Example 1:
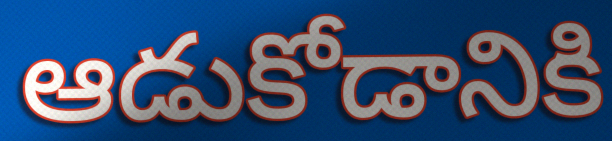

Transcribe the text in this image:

ఆడుకోడానికి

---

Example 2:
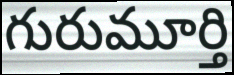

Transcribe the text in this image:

గురుమూర్తి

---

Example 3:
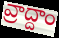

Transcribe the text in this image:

వ్రాద్దాం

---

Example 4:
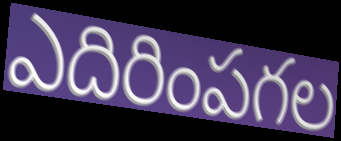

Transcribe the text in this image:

ఎదిరింపగల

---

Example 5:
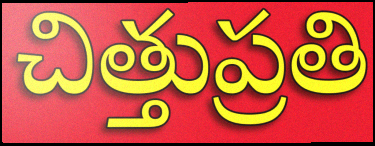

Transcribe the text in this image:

చిత్తుప్రతి